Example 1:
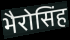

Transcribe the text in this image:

भैरोसिंह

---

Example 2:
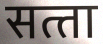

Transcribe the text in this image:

सत्‍ता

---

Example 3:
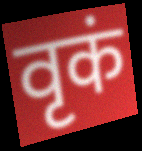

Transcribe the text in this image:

वृकं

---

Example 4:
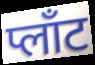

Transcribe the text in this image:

प्लाँट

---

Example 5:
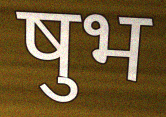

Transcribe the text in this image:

षुभ